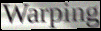
Warping